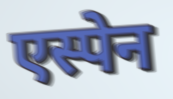
एस्पेन